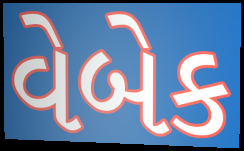
વેબેક